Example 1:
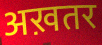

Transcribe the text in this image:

अख़तर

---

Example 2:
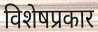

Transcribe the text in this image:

विशेषप्रकार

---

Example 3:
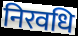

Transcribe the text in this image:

निरवधि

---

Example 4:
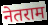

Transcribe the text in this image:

नेतराम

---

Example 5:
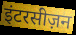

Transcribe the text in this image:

इंटरसीज़न